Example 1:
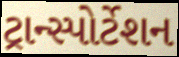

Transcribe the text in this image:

ટ્રાન્સ્પોર્ટેશન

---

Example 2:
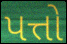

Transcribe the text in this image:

પત્તો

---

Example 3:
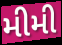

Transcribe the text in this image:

મીમી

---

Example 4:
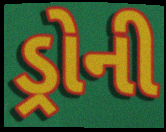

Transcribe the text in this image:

ડ્રોની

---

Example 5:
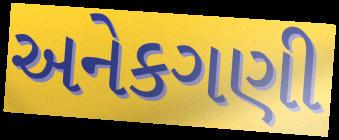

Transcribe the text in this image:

અનેકગણી